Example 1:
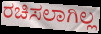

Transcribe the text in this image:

ರಚಿಸಲಾಗಿಲ್ಲ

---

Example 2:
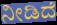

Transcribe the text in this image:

ನೀಡಿದೆ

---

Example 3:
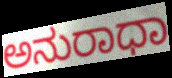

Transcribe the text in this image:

ಅನುರಾಧಾ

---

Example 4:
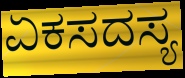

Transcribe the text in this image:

ಏಕಸದಸ್ಯ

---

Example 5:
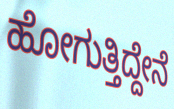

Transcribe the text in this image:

ಹೋಗುತ್ತಿದ್ದೇನೆ